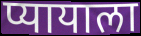
प्यायाला